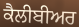
ਕੈਲੀਬੀਅਰ